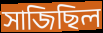
সাজিছিল